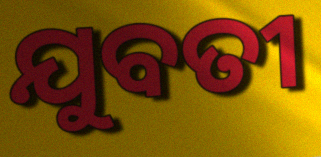
ଯୁବତୀ